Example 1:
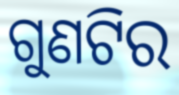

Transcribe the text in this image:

ଗୁଣଟିର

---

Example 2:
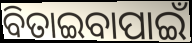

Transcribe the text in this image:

ବିତାଇବାପାଇଁ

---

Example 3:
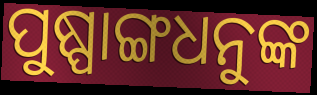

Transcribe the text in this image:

ପୁଷ୍ପାଙ୍ଗଧନୁଙ୍କ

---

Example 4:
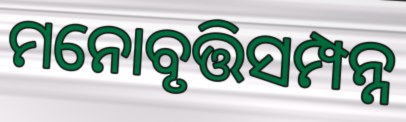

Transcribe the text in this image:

ମନୋବୃତ୍ତିସମ୍ପନ୍ନ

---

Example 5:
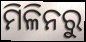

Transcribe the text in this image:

ମିଳିନରୁ